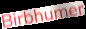
Birbhumer